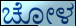
ಚೋಳ